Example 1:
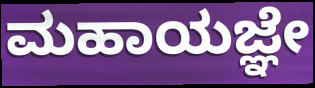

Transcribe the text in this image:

ಮಹಾಯಜ್ಞೇ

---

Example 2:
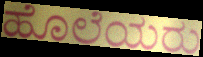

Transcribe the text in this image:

ಹೊಲೆಯರು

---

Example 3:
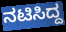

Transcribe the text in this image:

ನಟಿಸಿದ್ದ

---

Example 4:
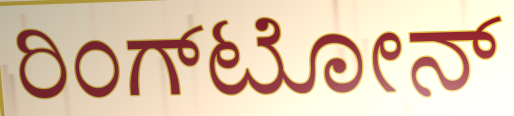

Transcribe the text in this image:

ರಿಂಗ್‌ಟೋನ್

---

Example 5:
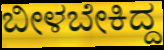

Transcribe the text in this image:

ಬೀಳಬೇಕಿದ್ದ